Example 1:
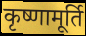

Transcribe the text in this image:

कृष्णामूर्ति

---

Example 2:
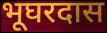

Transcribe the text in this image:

भूघरदास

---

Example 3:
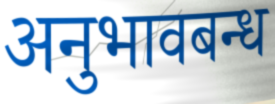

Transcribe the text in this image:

अनुभावबन्ध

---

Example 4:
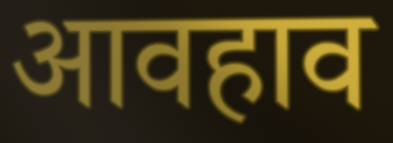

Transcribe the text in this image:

आवहाव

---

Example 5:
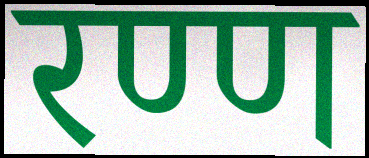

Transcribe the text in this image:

रण्ण